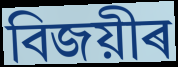
বিজয়ীৰ